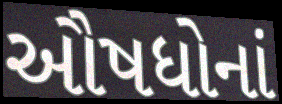
ઔષધોનાં